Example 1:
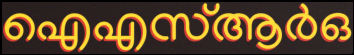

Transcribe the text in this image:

ഐഎസ്ആർഒ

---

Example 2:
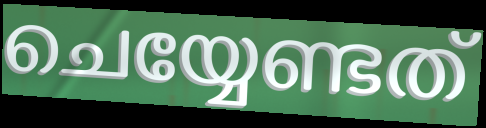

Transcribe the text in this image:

ചെയ്യേണ്ടത്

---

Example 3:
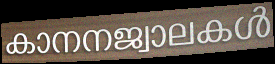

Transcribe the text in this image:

കാനനജ്വാലകൾ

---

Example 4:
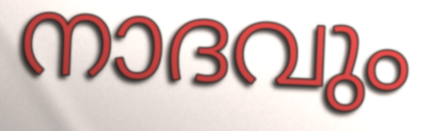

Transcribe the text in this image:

നാദവും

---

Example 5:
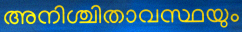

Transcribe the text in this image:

അനിശ്ചിതാവസ്ഥയും